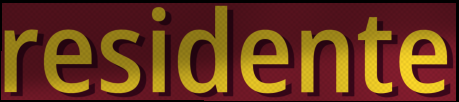
residente